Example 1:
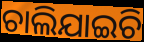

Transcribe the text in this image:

ଚାଲିଯାଇଚି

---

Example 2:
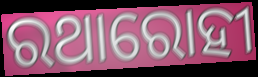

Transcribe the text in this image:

ରଥାରୋହୀ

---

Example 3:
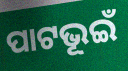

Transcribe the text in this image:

ପାଟଭୂଇଁ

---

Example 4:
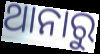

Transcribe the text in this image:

ଥାନାରୁ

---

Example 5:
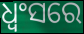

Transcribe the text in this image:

ଧ୍ୱଂସରେ